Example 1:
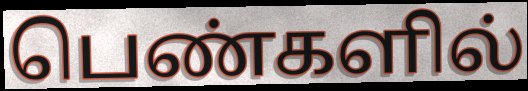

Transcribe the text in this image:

பெண்களில்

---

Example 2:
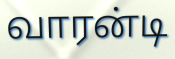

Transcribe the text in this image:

வாரன்டி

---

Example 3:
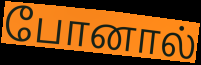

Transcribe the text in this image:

போனால்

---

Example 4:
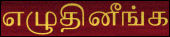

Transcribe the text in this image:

எழுதினீங்க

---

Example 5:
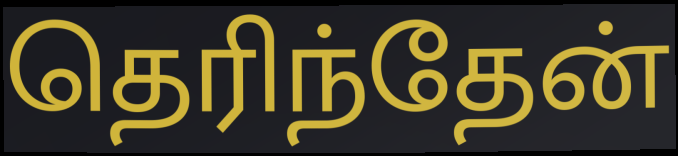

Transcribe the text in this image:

தெரிந்தேன்